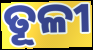
ତୂଳୀ